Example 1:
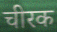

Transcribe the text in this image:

चीरक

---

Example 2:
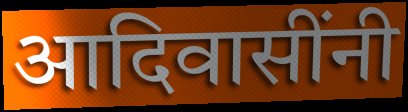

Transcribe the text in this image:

आदिवासींनी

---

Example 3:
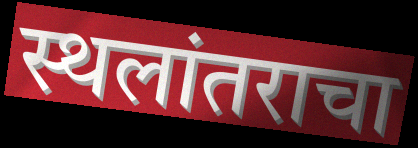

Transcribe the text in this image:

स्थलांतराचा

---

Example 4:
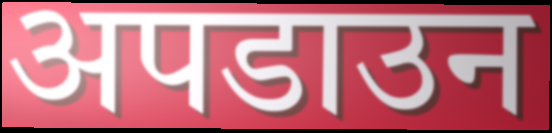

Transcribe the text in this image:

अपडाउन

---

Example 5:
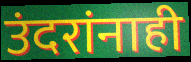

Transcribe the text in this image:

उंदरांनाही